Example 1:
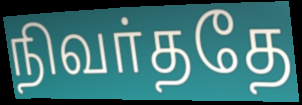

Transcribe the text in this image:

நிவர்ததே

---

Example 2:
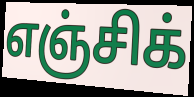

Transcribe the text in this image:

எஞ்சிக்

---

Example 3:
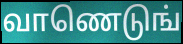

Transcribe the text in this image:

வாணெடுங்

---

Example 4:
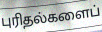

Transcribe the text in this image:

புரிதல்களைப்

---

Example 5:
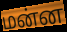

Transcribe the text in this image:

மன்ன